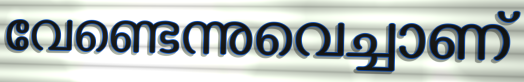
വേണ്ടെന്നുവെച്ചാണ്